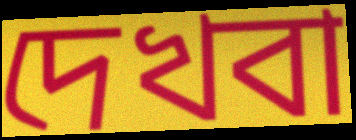
দেখবা